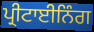
ਪ੍ਰੀਟਾਈਨਿੰਗ